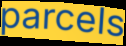
parcels